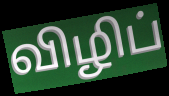
விழிப்